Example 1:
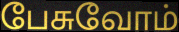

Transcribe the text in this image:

பேசுவோம்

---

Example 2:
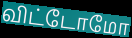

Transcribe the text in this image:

விட்டோமோ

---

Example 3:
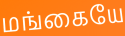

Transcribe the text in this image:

மங்கையே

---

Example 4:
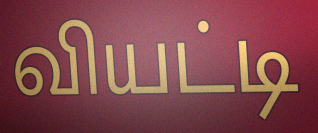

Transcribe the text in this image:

வியட்டி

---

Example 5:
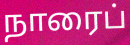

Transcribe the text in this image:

நாரைப்